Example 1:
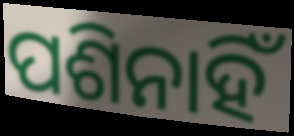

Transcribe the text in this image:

ପଶିନାହିଁ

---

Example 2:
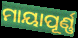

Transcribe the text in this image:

ମାୟାପୂର୍ଣ୍ଣ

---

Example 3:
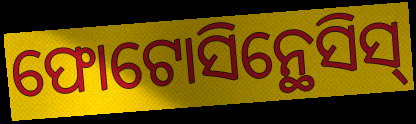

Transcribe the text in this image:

ଫୋଟୋସିନ୍ଥେସିସ୍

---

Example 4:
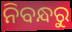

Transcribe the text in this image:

ନିବନ୍ଧରୁ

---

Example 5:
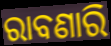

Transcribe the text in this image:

ରାବଣାରି